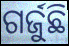
ଗର୍ଜୁଛି